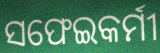
ସଫେଇକର୍ମୀ